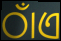
ଠାଁଏ